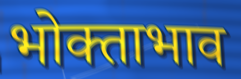
भोक्ताभाव